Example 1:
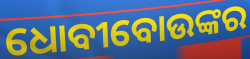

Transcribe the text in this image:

ଧୋବୀବୋଉଙ୍କର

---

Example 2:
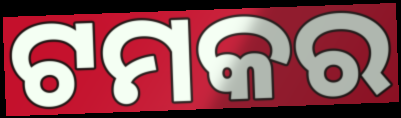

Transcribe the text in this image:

ଟମକର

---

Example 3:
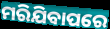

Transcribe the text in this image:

ମରିଯିବାପରେ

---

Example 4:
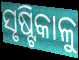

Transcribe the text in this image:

ସୃଷ୍ଟିକାଳୁ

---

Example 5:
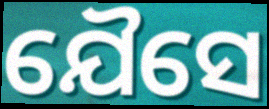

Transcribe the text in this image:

ଯୈସେ